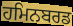
ਹਮਿਨਬਰਡ